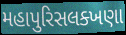
મહાપુરિસલક્ખણા